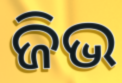
ଜିଭ